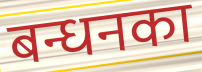
बन्धनका